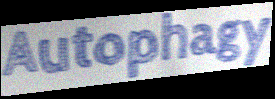
Autophagy